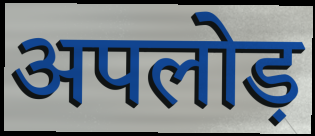
अपलोड़